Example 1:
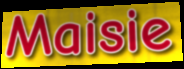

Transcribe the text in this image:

Maisie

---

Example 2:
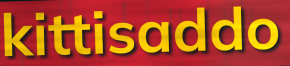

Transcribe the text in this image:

kittisaddo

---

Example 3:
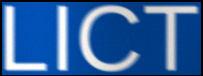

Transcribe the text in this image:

LICT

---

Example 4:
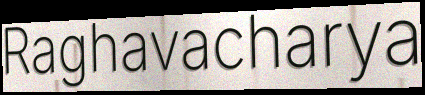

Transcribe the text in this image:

Raghavacharya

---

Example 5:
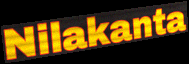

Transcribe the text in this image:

Nilakanta